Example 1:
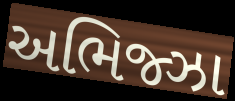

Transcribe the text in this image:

અભિજ્ઝા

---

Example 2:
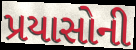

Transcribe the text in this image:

પ્રયાસોની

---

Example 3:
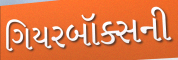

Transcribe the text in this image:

ગિયરબૉક્સની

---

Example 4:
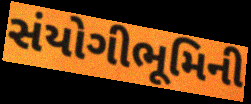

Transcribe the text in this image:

સંયોગીભૂમિની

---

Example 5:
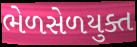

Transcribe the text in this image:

ભેળસેળયુક્ત